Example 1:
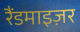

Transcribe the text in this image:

रैंडमाइज़र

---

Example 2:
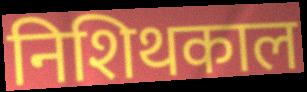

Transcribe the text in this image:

निशिथकाल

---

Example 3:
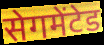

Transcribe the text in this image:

सेगमेंटेड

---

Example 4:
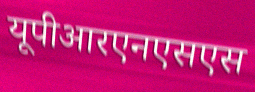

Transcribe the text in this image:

यूपीआरएनएसएस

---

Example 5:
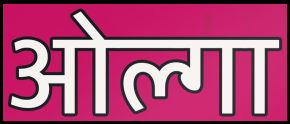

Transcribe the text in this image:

ओल्गा